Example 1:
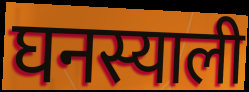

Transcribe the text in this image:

घनस्याली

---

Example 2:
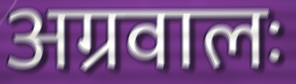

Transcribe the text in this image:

अग्रवालः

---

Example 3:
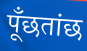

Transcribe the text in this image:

पूँछतांछ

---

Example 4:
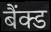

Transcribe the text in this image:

बैंक्ड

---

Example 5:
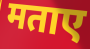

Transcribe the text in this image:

मताए